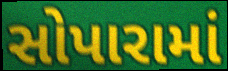
સોપારામાં